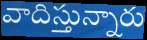
వాదిస్తున్నారు